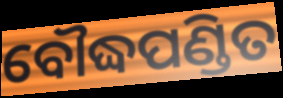
ବୌଦ୍ଧପଣ୍ଡିତ